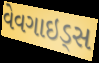
વેવગાઇડ્સ